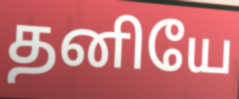
தனியே